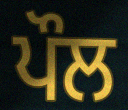
ਪੌਲ